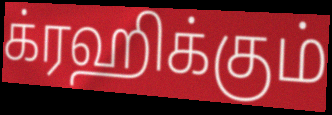
க்ரஹிக்கும்